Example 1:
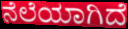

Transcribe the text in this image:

ನೆಲೆಯಾಗಿದೆ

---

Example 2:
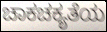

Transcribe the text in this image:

ಚಾಕಚಕ್ಯತೆಯ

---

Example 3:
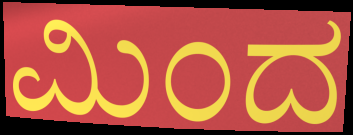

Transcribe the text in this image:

ಮಿಂದ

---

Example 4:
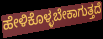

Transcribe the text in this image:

ಹೇಳಿಕೊಳ್ಳಬೇಕಾಗುತ್ತದೆ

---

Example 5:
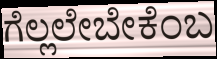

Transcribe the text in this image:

ಗೆಲ್ಲಲೇಬೇಕೆಂಬ